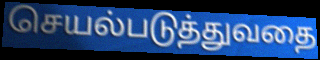
செயல்படுத்துவதை